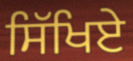
ਸਿੱਖਿਏ